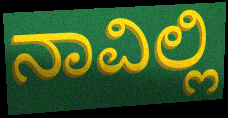
ನಾವಿಲ್ಲಿ